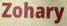
Zohary